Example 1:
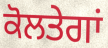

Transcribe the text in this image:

ਕੋਲਤੇਗਾਂ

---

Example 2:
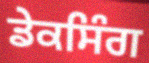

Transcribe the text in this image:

ਡੇਕਸਿੰਗ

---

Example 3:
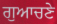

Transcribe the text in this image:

ਗੁਆਚਣੇ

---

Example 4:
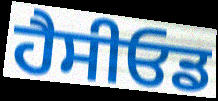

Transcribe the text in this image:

ਹੈਸੀਓਡ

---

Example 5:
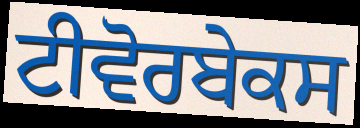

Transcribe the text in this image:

ਟੀਵੋਰਬੇਕਸ